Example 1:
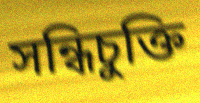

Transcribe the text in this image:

সন্ধিচুক্তি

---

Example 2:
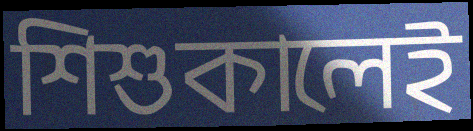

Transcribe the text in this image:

শিশুকালেই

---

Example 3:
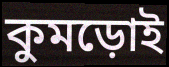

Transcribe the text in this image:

কুমড়োই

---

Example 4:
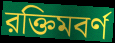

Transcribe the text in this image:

রক্তিমবর্ণ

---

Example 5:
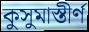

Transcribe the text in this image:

কুসুমাস্তীর্ণ